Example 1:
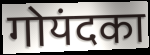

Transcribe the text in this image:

गोयंदका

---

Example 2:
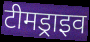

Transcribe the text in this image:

टीमड्राइव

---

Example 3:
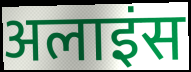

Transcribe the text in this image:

अलाइंस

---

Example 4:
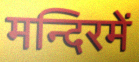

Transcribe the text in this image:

मन्दिरमें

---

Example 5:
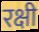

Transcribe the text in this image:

रक्षी